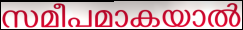
സമീപമാകയാൽ